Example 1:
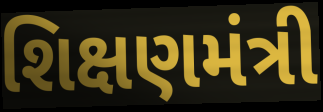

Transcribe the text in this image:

શિક્ષણમંત્રી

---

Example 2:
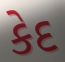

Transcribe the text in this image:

કેદ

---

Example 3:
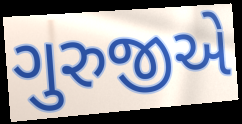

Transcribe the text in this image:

ગુરુજીએ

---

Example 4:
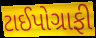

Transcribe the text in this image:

ટાઈપોગ્રાફી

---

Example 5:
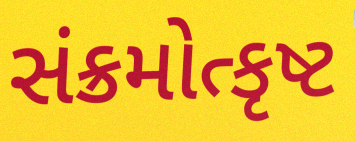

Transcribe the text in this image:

સંક્રમોત્કૃષ્ટ